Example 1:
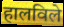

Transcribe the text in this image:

हालविले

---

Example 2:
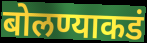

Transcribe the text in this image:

बोलण्याकडं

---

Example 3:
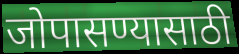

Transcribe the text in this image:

जोपासण्यासाठी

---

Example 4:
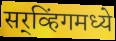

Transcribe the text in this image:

सर्व्हिंगमध्ये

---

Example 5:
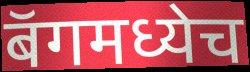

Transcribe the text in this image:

बॅगमध्येच